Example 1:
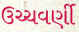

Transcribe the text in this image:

ઉચ્ચવર્ણી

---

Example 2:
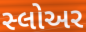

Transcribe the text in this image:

સ્લોઅર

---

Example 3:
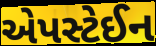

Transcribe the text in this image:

એપસ્ટેઈન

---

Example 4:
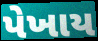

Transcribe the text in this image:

પેખાય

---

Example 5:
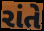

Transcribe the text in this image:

રાંતે